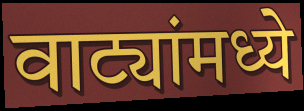
वाट्यांमध्ये